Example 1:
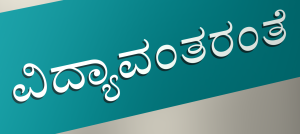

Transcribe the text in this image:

ವಿದ್ಯಾವಂತರಂತೆ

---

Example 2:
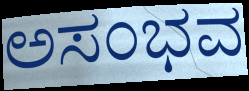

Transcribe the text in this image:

ಅಸಂಭವ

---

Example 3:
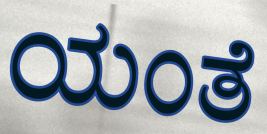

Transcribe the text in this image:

ಯಂತೆ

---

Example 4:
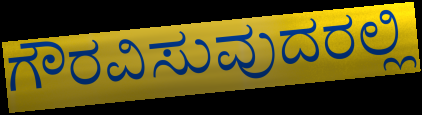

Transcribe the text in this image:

ಗೌರವಿಸುವುದರಲ್ಲಿ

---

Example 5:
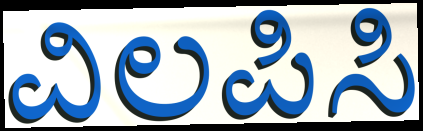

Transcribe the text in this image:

ವಿಲಪಿಸಿ